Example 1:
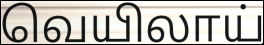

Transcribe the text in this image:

வெயிலாய்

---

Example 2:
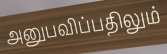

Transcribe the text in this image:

அனுபவிப்பதிலும்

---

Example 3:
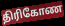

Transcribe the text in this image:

திரிகோண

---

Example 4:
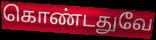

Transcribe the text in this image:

கொண்டதுவே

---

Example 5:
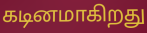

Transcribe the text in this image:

கடினமாகிறது